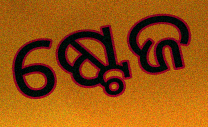
ଷ୍ଟେଜ